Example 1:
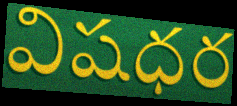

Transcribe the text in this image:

విషధర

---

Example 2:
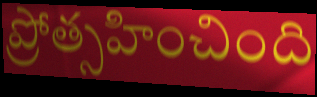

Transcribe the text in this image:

ప్రోత్సహించింది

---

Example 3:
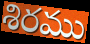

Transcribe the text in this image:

శిరము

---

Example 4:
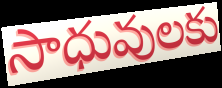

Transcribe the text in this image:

సాధువులకు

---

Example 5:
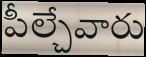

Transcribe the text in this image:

పీల్చేవారు